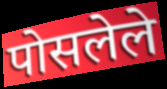
पोसलेले